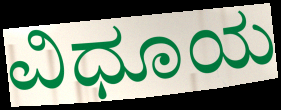
ವಿಧೂಯ